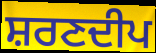
ਸ਼ਰਣਦੀਪ